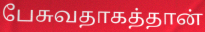
பேசுவதாகத்தான்